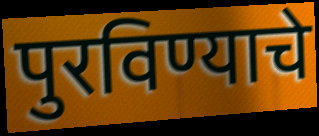
पुरविण्याचे